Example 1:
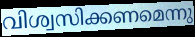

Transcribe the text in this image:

വിശ്വസിക്കണമെന്നു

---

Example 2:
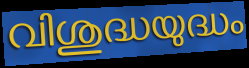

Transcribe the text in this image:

വിശുദ്ധയുദ്ധം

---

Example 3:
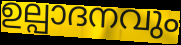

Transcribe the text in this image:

ഉല്പാദനവും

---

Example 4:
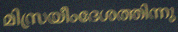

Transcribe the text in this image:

മിസ്രയീംദേശത്തിന്നു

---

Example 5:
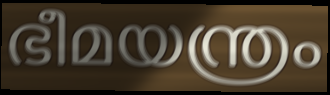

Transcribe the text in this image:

ഭീമയന്ത്രം